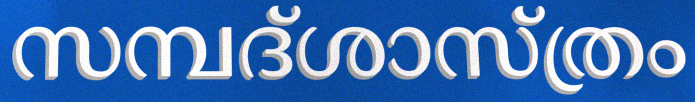
സമ്പദ്ശാസ്ത്രം